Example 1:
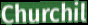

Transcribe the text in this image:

Churchil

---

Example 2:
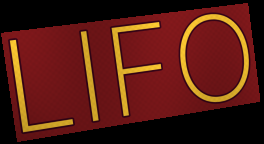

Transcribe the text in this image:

LIFO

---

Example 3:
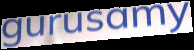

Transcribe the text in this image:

gurusamy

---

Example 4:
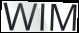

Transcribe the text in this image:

WIM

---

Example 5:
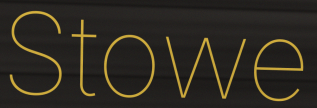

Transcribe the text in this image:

Stowe